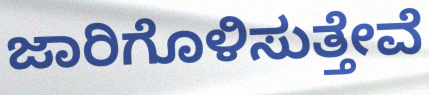
ಜಾರಿಗೊಳಿಸುತ್ತೇವೆ